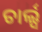
ଚାର୍ଲ୍ସ